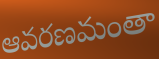
ఆవరణమంతా